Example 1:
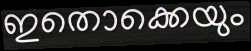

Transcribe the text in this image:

ഇതൊക്കെയും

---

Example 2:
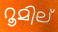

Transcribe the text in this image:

റൂമില്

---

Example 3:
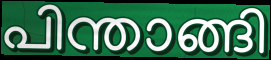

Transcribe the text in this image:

പിന്താങ്ങി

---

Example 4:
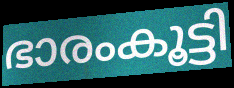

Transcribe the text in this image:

ഭാരംകൂട്ടി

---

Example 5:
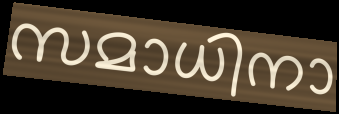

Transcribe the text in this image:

സമാധിനാ